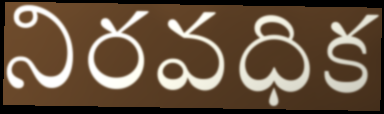
నిరవధిక